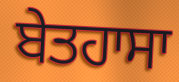
ਬੇਤਹਾਸਾ